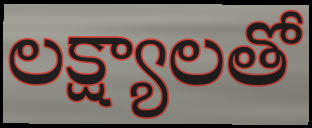
లక్ష్యాలతో